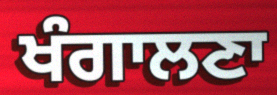
ਖੰਗਾਲਣਾ